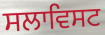
ਸਲਾਵਿਸਟ